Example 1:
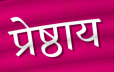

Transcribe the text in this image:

प्रेष्ठाय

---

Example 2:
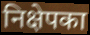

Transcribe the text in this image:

निक्षेपका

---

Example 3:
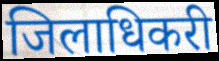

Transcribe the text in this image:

जिलाधिकरी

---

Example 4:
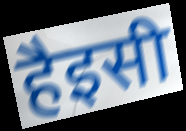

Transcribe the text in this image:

हैइसी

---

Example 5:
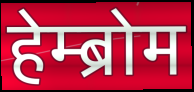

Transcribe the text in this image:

हेम्ब्रोम